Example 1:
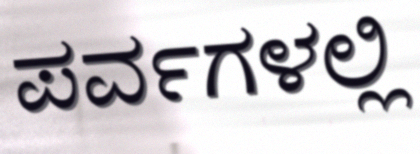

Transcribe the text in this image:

ಪರ್ವಗಳಲ್ಲಿ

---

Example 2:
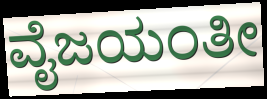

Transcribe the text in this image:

ವೈಜಯಂತೀ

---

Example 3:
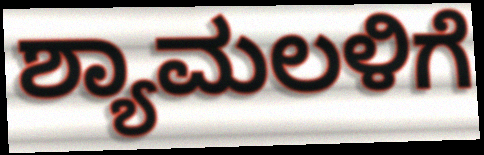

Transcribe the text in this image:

ಶ್ಯಾಮಲಳಿಗೆ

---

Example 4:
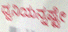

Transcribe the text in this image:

ಧ್ವನಿಯನ್ನಷ್ಟೇ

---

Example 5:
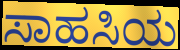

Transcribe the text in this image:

ಸಾಹಸಿಯ